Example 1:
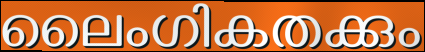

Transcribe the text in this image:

ലൈംഗികതക്കും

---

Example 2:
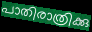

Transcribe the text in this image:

പാതിരാത്രിക്കു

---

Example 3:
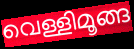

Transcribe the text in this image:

വെള്ളിമൂങ്ങ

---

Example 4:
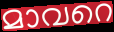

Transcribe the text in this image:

മാവറെ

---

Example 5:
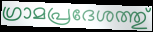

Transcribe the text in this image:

ഗ്രാമപ്രദേശത്തു്